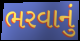
ભરવાનું